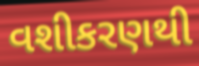
વશીકરણથી